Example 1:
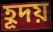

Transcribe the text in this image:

হূদয়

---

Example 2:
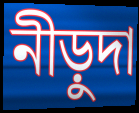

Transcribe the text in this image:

নীড়ুদা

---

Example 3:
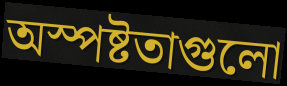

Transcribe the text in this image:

অস্পষ্টতাগুলো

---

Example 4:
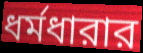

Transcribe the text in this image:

ধর্মধারার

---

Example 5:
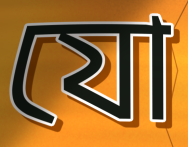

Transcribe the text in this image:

যো